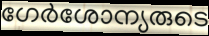
ഗേർശോന്യരുടെ